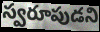
స్వరూపుడని